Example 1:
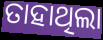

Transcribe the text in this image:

ତାହାଥିଲା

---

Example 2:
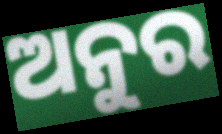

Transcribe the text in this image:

ଅନୁର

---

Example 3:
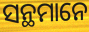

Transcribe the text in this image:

ସନ୍ଥମାନେ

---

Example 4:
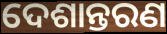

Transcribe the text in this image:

ଦେଶାନ୍ତରଣ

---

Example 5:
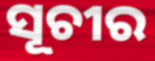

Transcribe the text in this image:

ସୂଚୀର